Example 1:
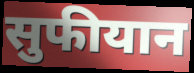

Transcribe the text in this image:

सुफीयान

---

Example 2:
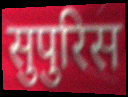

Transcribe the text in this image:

सुपुरिस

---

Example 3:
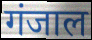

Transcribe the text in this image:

गंजाल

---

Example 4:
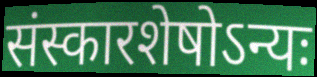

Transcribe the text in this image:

संस्कारशेषोऽन्यः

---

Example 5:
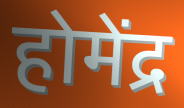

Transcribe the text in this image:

होमेंद्र